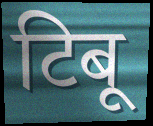
टिबू